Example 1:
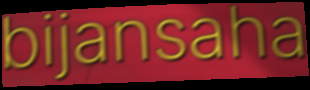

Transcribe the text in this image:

bijansaha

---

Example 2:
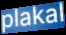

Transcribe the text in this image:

plakal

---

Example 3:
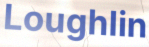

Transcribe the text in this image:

Loughlin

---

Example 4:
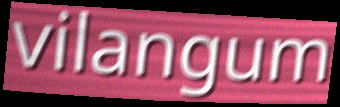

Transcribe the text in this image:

vilangum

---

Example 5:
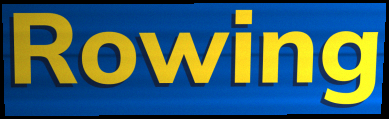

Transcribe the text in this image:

Rowing